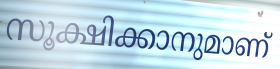
സൂക്ഷിക്കാനുമാണ്